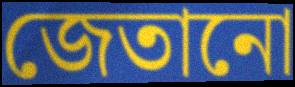
জেতানো